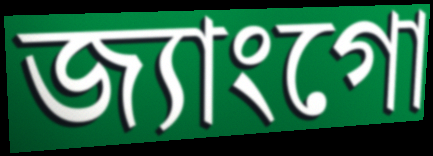
জ্যাংগো